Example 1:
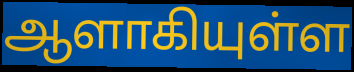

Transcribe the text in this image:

ஆளாகியுள்ள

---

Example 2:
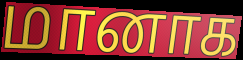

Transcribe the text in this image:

மானாக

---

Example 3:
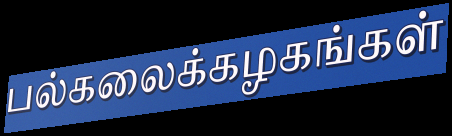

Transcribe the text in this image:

பல்கலைக்கழகங்கள்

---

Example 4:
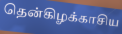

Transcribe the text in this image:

தென்கிழக்காசிய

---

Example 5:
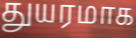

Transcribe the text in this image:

துயரமாக